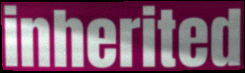
inherited